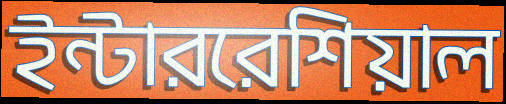
ইন্টাররেশিয়াল